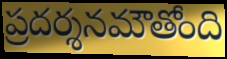
ప్రదర్శనమౌతోంది